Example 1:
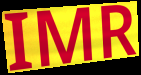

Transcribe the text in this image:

IMR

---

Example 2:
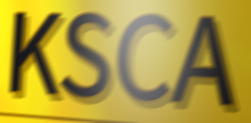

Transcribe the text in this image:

KSCA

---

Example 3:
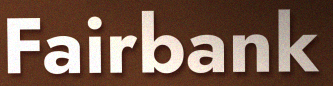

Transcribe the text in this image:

Fairbank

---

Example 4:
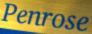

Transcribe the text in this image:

Penrose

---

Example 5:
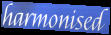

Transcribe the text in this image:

harmonised